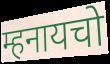
म्हनायचो